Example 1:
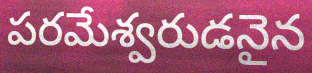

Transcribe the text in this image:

పరమేశ్వరుడనైన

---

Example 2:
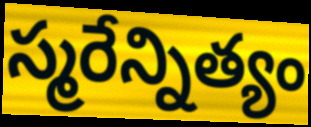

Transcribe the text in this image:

స్మరేన్నిత్యం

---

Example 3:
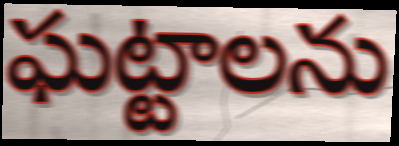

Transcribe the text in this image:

ఘట్టాలను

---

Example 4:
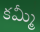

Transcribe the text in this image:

కమ్మీ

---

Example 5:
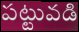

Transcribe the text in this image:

పట్టువడి